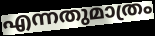
എന്നതുമാത്രം